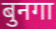
बुनगा